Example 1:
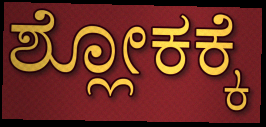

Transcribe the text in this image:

ಶ್ಲೋಕಕ್ಕೆ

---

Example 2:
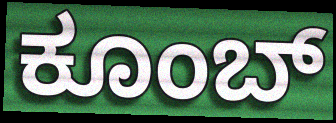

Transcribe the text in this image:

ಕೂಂಬ್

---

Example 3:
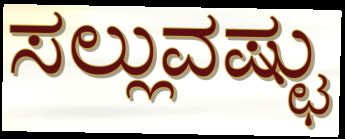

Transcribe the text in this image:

ಸಲ್ಲುವಷ್ಟು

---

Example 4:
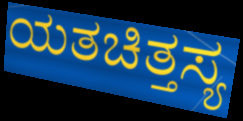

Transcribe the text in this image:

ಯತಚಿತ್ತಸ್ಯ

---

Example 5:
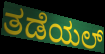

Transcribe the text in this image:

ತಡೆಯಲ್